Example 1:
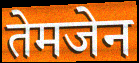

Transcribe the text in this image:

तेमजेन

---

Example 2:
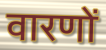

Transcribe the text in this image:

वारणों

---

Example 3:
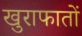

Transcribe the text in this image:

खुराफातों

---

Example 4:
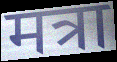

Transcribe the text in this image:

मत्रा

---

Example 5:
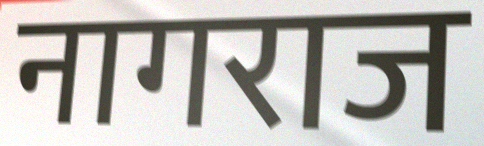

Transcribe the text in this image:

नागराज